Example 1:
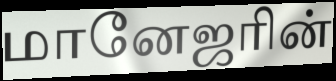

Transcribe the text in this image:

மானேஜரின்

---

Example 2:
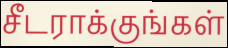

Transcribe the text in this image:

சீடராக்குங்கள்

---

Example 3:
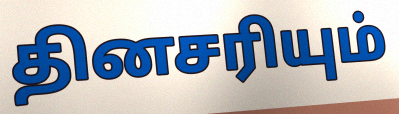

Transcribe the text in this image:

தினசரியும்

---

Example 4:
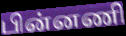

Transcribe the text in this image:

பின்னணி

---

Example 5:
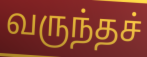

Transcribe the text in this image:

வருந்தச்